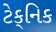
ટેક્‌નિક